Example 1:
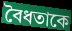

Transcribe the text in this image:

বৈধতাকে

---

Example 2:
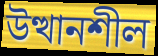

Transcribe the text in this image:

উত্থানশীল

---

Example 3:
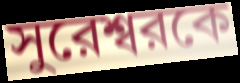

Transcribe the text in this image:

সুরেশ্বরকে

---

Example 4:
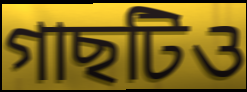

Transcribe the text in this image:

গাছটিও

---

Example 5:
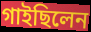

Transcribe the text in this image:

গাইছিলেন